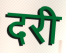
दरी